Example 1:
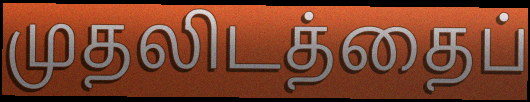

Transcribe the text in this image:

முதலிடத்தைப்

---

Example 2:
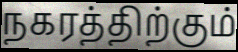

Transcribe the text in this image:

நகரத்திற்கும்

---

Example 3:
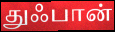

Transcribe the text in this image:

துஃபான்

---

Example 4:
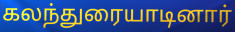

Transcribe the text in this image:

கலந்துரையாடினார்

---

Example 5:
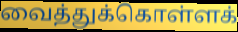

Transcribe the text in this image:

வைத்துக்கொள்ளக்